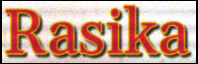
Rasika